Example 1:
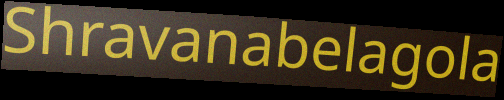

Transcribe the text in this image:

Shravanabelagola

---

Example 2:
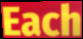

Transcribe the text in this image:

Each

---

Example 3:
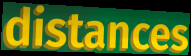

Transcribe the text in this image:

distances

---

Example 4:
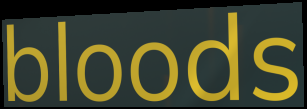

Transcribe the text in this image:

bloods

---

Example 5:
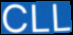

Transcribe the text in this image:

CLL